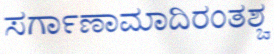
ಸರ್ಗಾಣಾಮಾದಿರಂತಶ್ಚ